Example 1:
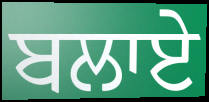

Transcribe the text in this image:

ਬਲਾਏ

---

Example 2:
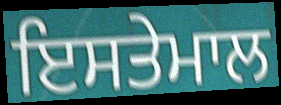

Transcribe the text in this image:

ਇਸਤੇਮਾਲ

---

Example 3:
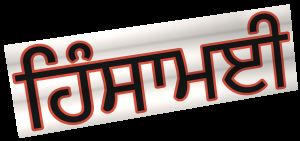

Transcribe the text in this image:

ਹਿੰਸਾਮਈ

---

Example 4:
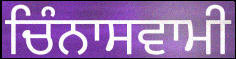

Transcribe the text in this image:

ਚਿੰਨਾਸਵਾਮੀ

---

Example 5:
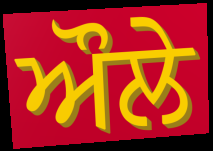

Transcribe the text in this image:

ਔਲੇ